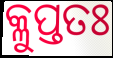
କ୍ଳୁପ୍ତତଃ